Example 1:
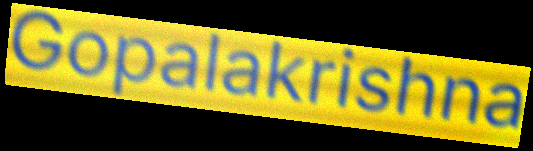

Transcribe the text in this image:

Gopalakrishna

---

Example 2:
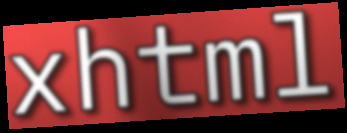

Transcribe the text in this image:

xhtml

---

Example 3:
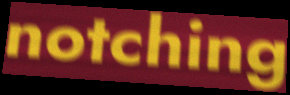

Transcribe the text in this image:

notching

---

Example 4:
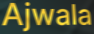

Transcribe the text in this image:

Ajwala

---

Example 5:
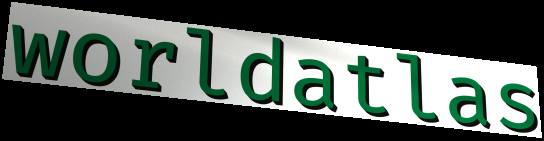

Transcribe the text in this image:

worldatlas